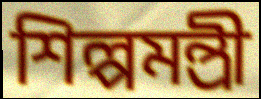
শিল্পমন্ত্রী